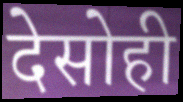
देसोही